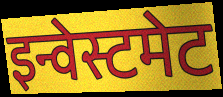
इन्वेस्टमेट